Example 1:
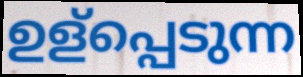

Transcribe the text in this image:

ഉള്പ്പെടുന്ന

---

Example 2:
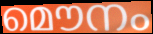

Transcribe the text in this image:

മൌനം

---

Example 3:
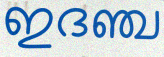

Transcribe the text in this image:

ഇദഞ്ച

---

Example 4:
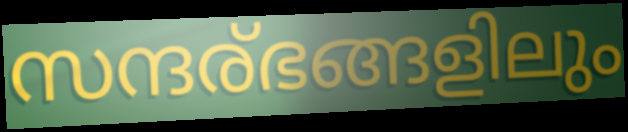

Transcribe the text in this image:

സന്ദര്ഭങ്ങളിലും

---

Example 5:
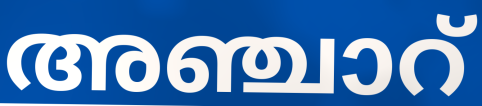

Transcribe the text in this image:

അഞ്ചാറ്